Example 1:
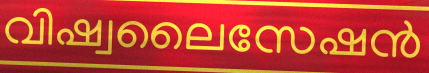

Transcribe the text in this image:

വിഷ്വലൈസേഷൻ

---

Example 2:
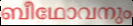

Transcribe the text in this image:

ബീഥോവനും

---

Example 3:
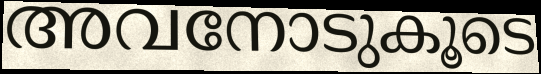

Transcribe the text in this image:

അവനോടുകൂടെ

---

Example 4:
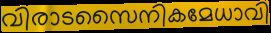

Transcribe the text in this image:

വിരാടസൈനികമേധാവി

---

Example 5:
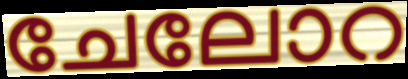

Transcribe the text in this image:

ചേലോറ